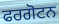
ਫਰਗੋਟਨ